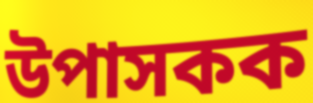
উপাসকক